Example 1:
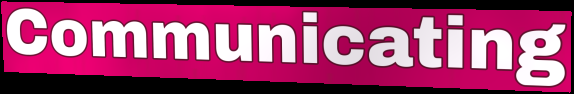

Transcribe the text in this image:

Communicating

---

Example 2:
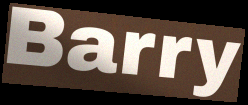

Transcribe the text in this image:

Barry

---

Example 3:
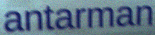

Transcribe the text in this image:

antarman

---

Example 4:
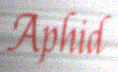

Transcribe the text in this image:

Aphid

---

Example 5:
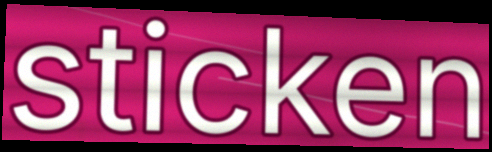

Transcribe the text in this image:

sticken